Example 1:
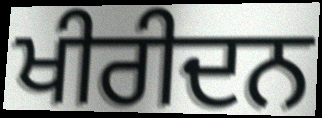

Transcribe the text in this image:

ਖੀਰੀਦਨ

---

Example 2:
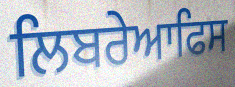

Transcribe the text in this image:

ਲਿਬਰੇਆਫਿਸ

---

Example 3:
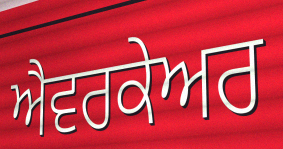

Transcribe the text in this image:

ਐਵਰਕੇਅਰ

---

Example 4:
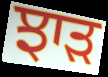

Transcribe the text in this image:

ਝਾੜ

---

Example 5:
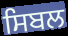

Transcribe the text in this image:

ਸਿਬਲ